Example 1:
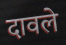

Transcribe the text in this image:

दावले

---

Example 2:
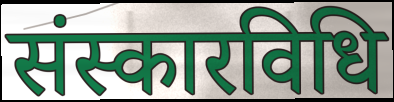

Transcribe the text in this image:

संस्कारविधि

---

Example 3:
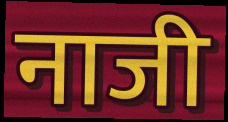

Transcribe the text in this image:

नाजी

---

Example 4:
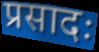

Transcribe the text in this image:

प्रसादः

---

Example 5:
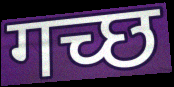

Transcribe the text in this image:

गच्छ